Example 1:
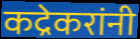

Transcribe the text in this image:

कद्रेकरांनी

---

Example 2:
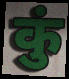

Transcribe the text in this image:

कुं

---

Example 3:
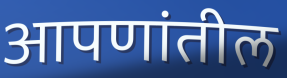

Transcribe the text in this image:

आपणांतील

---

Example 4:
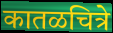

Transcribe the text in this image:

कातळचित्रे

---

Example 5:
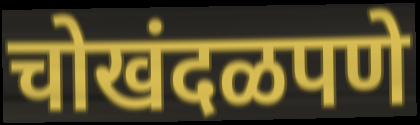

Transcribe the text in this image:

चोखंदळपणे